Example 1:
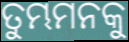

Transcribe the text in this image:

ତୁମ୍ଭମନକୁ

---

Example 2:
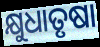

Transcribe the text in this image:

କ୍ଷୁଧାତୃଷା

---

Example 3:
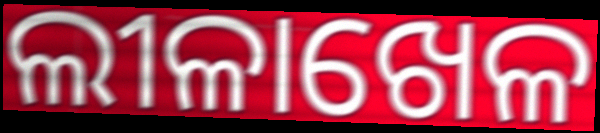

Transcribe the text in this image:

ଲୀଳାଖେଳ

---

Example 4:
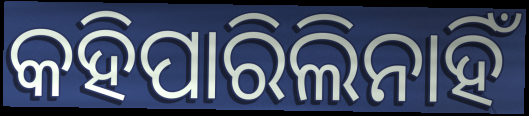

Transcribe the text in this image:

କହିପାରିଲିନାହିଁ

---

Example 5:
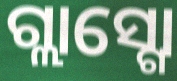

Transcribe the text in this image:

ଗ୍ଲାସ୍ଗୋ